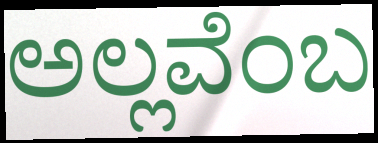
ಅಲ್ಲವೆಂಬ